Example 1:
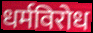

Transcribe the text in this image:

धर्मविरोध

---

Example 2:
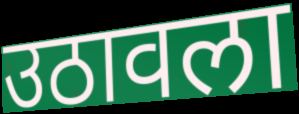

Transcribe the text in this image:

उठावला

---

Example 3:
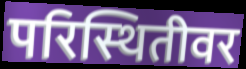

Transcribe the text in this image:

परिस्थितीवर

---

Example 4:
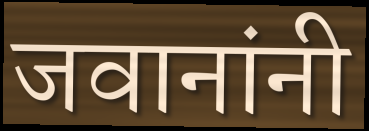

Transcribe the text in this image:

जवानांनी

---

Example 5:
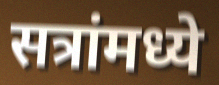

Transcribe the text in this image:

सत्रांमध्ये